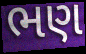
ભણ